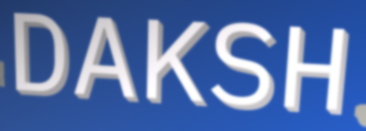
DAKSH